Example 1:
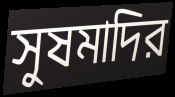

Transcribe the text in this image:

সুষমাদির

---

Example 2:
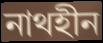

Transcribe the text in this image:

নাথহীন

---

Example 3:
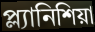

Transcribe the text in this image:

প্ল্যানিশিয়া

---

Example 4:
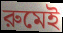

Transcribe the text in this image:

রুমেই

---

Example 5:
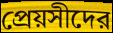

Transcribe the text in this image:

প্রেয়সীদের